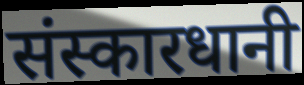
संस्कारधानी